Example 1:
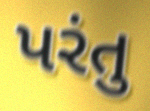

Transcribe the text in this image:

પરંતુ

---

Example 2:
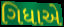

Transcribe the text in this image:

ગિધાએ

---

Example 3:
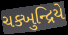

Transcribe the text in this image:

ચક્ખુન્દ્રિયે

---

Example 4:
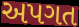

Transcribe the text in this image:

અપગત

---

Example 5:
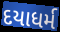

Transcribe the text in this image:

દયાધર્મ